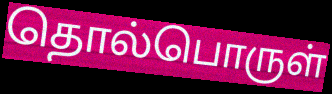
தொல்பொருள்